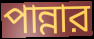
পান্নার